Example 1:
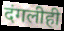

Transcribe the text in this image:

दंगलीही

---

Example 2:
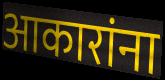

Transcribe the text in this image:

आकारांना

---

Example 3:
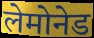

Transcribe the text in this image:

लेमोनेड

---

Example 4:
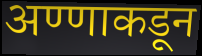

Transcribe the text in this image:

अण्णाकडून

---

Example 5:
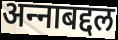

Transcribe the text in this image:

अन्‍नाबद्दल